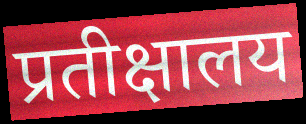
प्रतीक्षालय